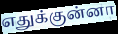
எதுக்குன்னா